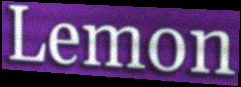
Lemon